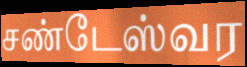
சண்டேஸ்வர